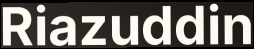
Riazuddin